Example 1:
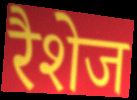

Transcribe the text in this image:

रैशेज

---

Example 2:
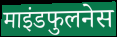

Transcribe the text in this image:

माइंडफुलनेस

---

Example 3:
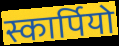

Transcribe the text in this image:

स्कार्पियो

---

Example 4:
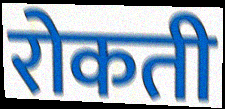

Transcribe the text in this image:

रोकती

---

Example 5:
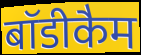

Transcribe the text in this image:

बॉडीकैम